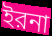
ইরনা